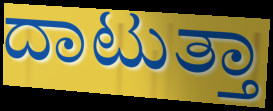
ದಾಟುತ್ತಾ